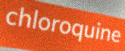
chloroquine